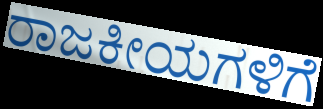
ರಾಜಕೀಯಗಳಿಗೆ